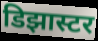
डिझास्टर